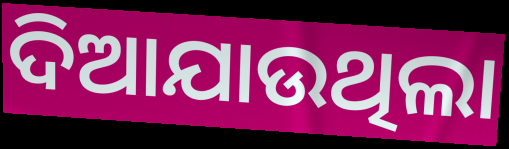
ଦିଆଯାଉଥିଲା